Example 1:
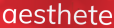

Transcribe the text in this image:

aesthete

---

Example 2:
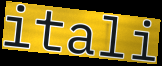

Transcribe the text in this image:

itali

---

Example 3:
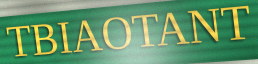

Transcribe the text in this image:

TBIAOTANT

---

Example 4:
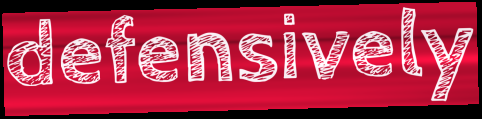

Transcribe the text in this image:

defensively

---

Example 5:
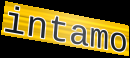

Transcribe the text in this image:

intamo